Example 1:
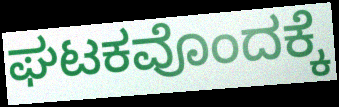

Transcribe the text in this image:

ಘಟಕವೊಂದಕ್ಕೆ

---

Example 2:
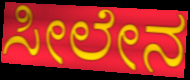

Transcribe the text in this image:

ಸೀಲೇನ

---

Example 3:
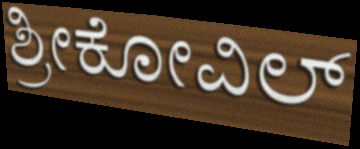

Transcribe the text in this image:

ಶ್ರೀಕೋವಿಲ್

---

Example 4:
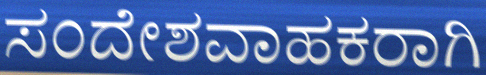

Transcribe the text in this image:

ಸಂದೇಶವಾಹಕರಾಗಿ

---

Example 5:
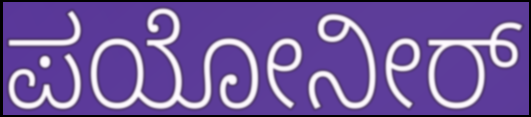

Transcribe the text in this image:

ಪಯೋನೀರ್